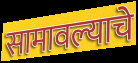
सामावल्याचे